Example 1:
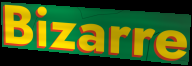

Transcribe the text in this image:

Bizarre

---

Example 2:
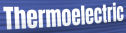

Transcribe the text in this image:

Thermoelectric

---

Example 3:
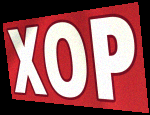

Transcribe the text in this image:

XOP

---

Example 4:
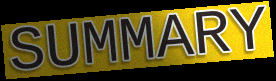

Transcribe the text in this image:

SUMMARY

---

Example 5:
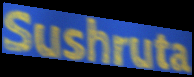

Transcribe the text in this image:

Sushruta